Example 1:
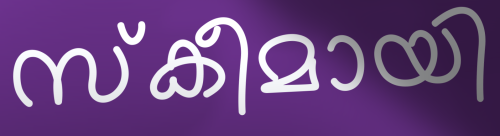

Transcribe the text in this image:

സ്കീമായി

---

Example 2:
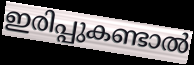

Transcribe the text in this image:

ഇരിപ്പുകണ്ടാൽ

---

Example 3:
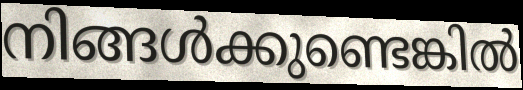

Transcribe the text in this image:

നിങ്ങൾക്കുണ്ടെങ്കിൽ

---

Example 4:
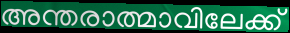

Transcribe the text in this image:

അന്തരാത്മാവിലേക്ക്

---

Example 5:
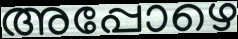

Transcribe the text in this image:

അപ്പോഴെ